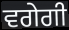
ਵਗੇਗੀ